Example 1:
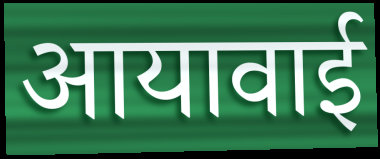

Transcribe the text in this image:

आयावाई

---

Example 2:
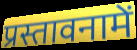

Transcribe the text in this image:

प्रस्तावनामें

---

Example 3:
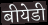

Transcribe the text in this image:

बीयेडी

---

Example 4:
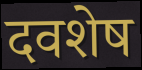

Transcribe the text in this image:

दवशेष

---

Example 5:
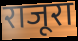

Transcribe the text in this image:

राजूरा